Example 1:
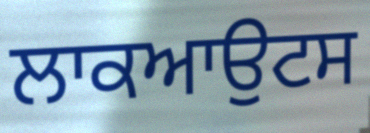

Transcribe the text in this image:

ਲਾਕਆਉਟਸ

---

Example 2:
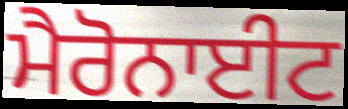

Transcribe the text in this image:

ਮੈਰੋਨਾਈਟ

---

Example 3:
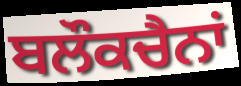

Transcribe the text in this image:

ਬਲੌਕਚੈਨਾਂ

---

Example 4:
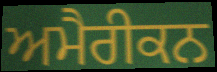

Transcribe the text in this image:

ਅਮੈਰੀਕਨ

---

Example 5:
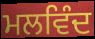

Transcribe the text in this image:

ਮਲਵਿੰਦ